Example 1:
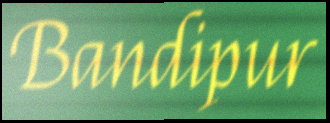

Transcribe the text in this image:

Bandipur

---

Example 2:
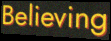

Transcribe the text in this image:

Believing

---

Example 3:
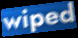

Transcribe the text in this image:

wiped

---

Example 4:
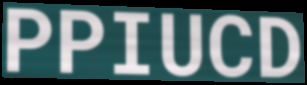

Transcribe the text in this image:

PPIUCD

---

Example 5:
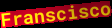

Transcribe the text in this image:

Franscisco